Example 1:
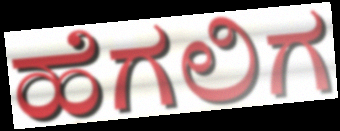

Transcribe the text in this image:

ಹೆಗಲಿಗ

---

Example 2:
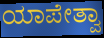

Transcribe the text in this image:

ಯಾಪೇತ್ವಾ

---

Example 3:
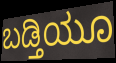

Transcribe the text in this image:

ಬಡ್ತಿಯೂ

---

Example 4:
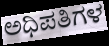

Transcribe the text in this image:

ಅಧಿಪತಿಗಳ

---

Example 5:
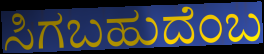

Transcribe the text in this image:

ಸಿಗಬಹುದೆಂಬ